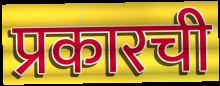
प्रकारची